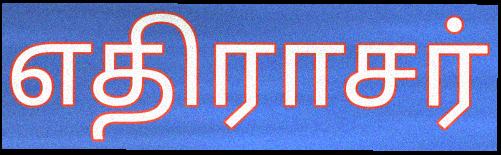
எதிராசர்